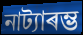
নাট্যাৰম্ভ